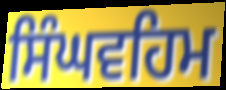
ਸਿੰਘਵਹਿਮ